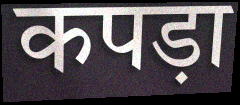
कपड़ा